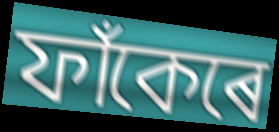
ফাঁকেৰে